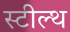
स्टील्थ